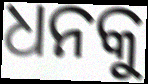
ଧନକୁ